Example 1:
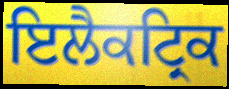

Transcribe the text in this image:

ਇਲੈਕਟ੍ਰਿਕ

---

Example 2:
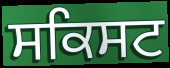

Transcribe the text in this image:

ਸਕਿਸਟ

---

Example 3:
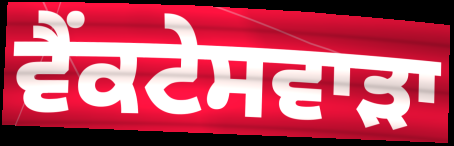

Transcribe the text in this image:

ਵੈਂਕਟੇਸਵਾੜਾ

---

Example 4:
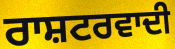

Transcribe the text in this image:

ਰਾਸ਼ਟਰਵਾਦੀ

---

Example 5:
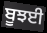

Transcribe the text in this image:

ਬੂਝਈ